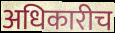
अधिकारीच